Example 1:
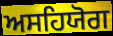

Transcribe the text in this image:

ਅਸਹਿਯੋਗ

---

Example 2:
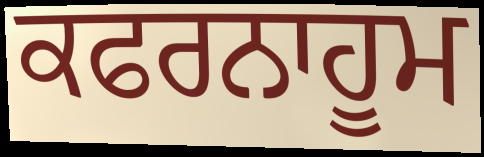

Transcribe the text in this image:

ਕਫਰਨਾਹੂਮ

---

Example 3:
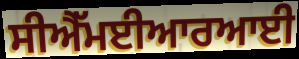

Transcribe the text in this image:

ਸੀਐੱਮਈਆਰਆਈ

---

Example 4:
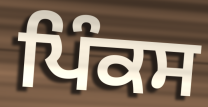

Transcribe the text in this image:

ਪਿੰਕਸ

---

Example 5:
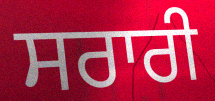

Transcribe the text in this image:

ਸਰਾਰੀ